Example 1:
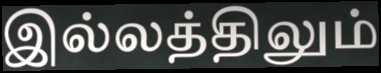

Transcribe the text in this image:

இல்லத்திலும்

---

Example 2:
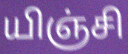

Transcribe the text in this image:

யிஞ்சி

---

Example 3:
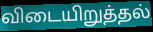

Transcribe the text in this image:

விடையிறுத்தல்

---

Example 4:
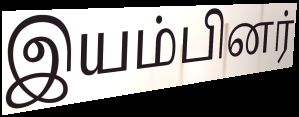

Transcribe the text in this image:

இயம்பினர்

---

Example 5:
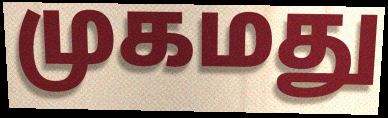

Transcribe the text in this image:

முகமது